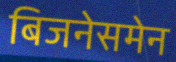
बिजनेसमेन